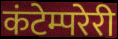
कंटेम्परेरी